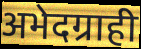
अभेदग्राही